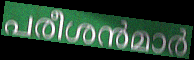
പരീശൻമാർ